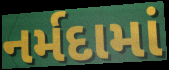
નર્મદામાં